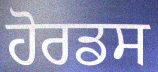
ਹੋਰਡਸ